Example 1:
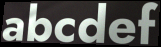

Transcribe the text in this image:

abcdef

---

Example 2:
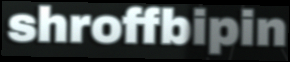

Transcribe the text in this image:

shroffbipin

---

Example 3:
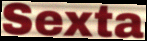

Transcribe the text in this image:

Sexta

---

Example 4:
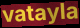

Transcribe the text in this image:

vatayla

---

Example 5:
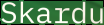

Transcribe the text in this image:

Skardu